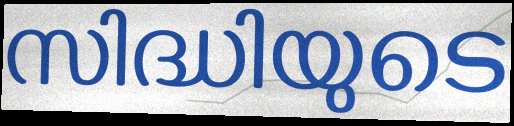
സിദ്ധിയുടെ